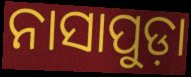
ନାସାପୁଡ଼ା